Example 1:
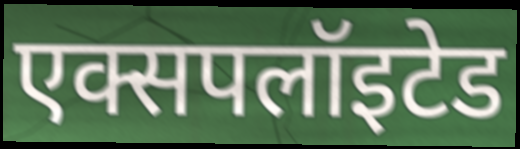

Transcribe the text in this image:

एक्सपलॉइटेड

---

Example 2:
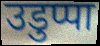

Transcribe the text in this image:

उडुप्पा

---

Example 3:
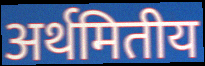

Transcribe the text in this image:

अर्थमितीय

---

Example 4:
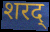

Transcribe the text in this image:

शरद्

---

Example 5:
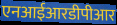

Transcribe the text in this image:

एनआईआरडीपीआर